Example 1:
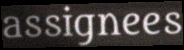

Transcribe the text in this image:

assignees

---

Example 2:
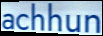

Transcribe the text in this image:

achhun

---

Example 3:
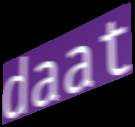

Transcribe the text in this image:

daat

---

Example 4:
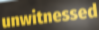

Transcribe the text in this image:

unwitnessed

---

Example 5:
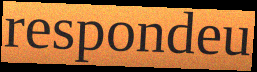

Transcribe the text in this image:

respondeu